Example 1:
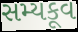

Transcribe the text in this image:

સમ્યકૂવ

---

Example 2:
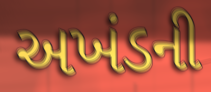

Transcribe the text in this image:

અખંડની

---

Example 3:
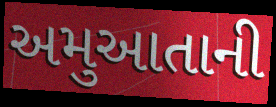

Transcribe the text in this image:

અમુઆતાની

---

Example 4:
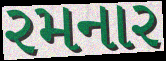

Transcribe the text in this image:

રમનાર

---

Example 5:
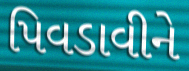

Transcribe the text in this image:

પિવડાવીને